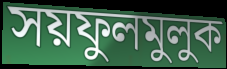
সয়ফুলমুলুক